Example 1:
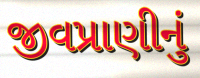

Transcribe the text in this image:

જીવપ્રાણીનું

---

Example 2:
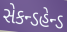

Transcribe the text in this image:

સેકન્ડહેન્ડ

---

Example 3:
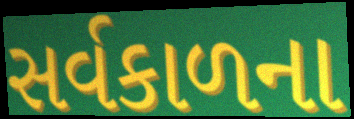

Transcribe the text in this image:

સર્વકાળના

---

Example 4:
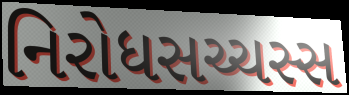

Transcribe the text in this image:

નિરોધસચ્ચસ્સ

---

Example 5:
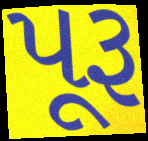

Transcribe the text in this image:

પૂરૂ